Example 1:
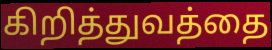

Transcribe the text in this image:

கிறித்துவத்தை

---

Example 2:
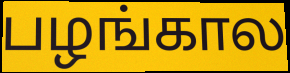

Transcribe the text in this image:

பழங்கால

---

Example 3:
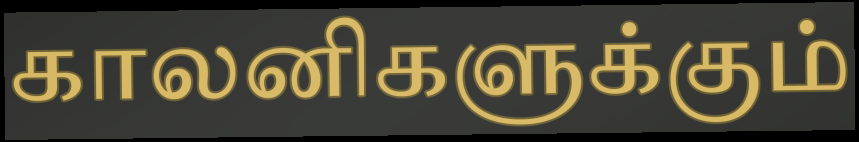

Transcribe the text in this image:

காலனிகளுக்கும்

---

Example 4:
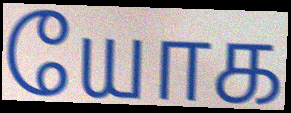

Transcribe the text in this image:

யோக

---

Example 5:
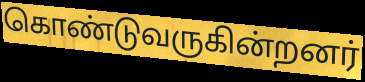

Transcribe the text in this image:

கொண்டுவருகின்றனர்